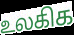
உலகிக